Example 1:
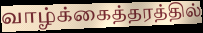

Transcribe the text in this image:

வாழ்க்கைத்தரத்தில்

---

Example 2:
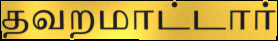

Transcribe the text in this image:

தவறமாட்டார்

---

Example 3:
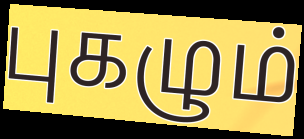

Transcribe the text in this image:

புகழும்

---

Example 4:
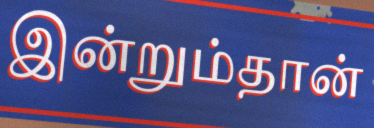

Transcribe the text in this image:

இன்றும்தான்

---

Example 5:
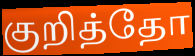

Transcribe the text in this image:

குறித்தோ